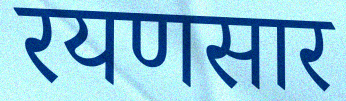
रयणसार